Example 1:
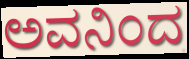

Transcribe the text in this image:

ಅವನಿಂದ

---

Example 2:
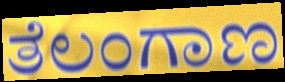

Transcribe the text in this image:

ತೆಲಂಗಾಣ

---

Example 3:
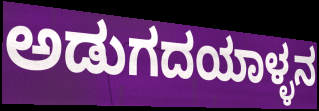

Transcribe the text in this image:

ಅಡುಗದಯಾಳ್ಳನ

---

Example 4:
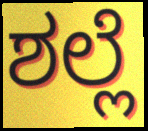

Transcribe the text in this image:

ಶಲ್ಲೆ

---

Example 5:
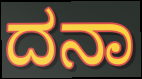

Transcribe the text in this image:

ದನಾ